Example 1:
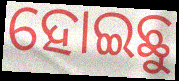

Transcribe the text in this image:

ହୋଇଛୁ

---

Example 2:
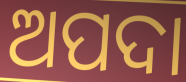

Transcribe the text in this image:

ଅପଦା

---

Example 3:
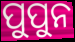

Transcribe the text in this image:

ପୁପୁନ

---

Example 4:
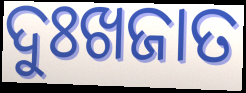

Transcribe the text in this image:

ଦୁଃଖଜାତ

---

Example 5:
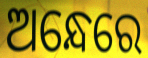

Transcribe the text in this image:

ଅନ୍ଧେରେ